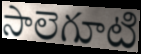
సాలెగూటి